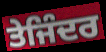
ਤੇਜਿੰਦਰ